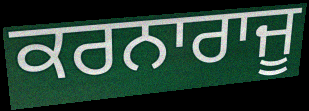
ਕਰਨਾਰਾਜੂ